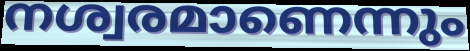
നശ്വരമാണെന്നും